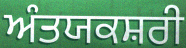
ਅੰਤਯਕਸ਼ਰੀ